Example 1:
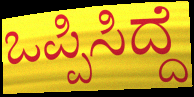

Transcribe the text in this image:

ಒಪ್ಪಿಸಿದ್ದೆ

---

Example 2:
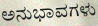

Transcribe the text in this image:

ಅನುಭಾವಗಳು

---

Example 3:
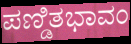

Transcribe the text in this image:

ಪಣ್ಡಿತಭಾವಂ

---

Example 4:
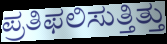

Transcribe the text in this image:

ಪ್ರತಿಫಲಿಸುತ್ತಿತ್ತು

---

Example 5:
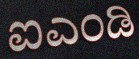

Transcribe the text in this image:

ಐಎಂಡಿ